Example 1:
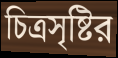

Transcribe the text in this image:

চিত্রসৃষ্টির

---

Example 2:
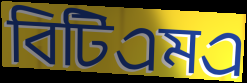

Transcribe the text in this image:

বিটিএমএ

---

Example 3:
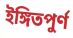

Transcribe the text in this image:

ইঙ্গিতপুর্ণ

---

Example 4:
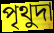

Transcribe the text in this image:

পৃথুদা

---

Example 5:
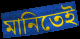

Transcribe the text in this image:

মানিতেই